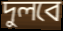
দুলবে